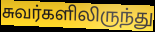
சுவர்களிலிருந்து